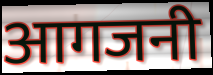
आगजनी